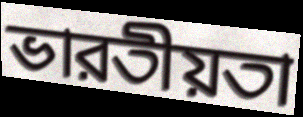
ভারতীয়তা